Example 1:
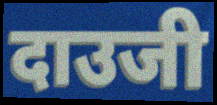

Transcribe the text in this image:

दाउजी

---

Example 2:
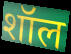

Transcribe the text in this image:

शॉल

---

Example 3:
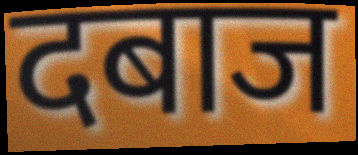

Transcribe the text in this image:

दबाज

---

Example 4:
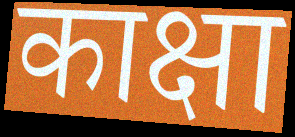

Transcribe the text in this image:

काक्षा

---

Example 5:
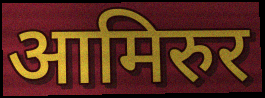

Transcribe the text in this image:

आमिरुर